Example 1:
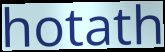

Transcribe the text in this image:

hotath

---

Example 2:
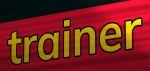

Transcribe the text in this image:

trainer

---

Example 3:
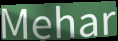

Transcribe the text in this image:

Mehar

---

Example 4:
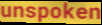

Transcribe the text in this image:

unspoken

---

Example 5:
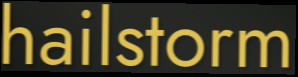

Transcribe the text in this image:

hailstorm